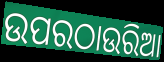
ଉପରଠାଉରିଆ